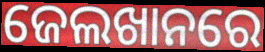
ଜେଲଖାନରେ